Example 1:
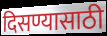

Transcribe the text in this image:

दिसण्यासाठी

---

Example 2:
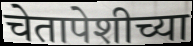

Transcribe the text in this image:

चेतापेशीच्या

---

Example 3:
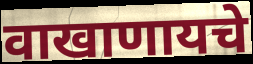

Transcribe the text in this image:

वाखाणायचे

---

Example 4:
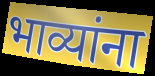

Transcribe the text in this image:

भाव्यांना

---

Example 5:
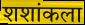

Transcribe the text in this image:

शशांकला